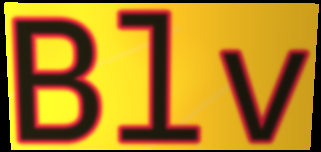
Blv